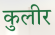
कुलीर